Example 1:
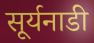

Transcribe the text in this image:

सूर्यनाडी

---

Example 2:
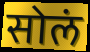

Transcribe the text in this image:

सोलं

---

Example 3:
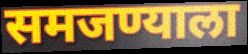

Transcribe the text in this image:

समजण्याला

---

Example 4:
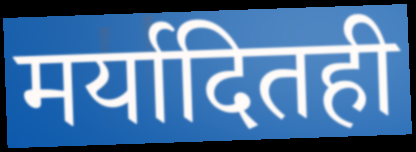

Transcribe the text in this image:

मर्यादितही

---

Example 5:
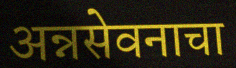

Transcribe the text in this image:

अन्नसेवनाचा